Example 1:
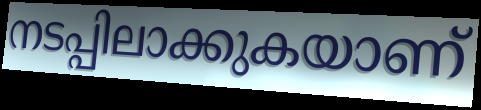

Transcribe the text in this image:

നടപ്പിലാക്കുകയാണ്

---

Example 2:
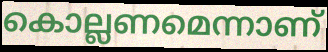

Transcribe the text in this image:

കൊല്ലണമെന്നാണ്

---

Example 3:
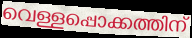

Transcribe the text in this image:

വെള്ളപ്പൊക്കത്തിന്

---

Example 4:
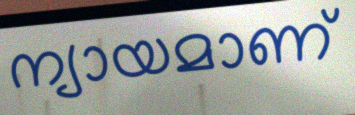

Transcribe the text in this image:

ന്യായമാണ്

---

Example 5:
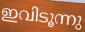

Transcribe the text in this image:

ഇവിടൂന്നു